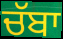
ਚੱਬਾ